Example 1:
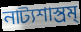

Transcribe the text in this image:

নাট্যশাস্ত্রম্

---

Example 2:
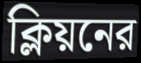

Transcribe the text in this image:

ক্লিয়নের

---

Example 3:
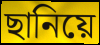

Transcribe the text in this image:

ছানিয়ে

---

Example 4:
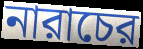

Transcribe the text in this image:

নারাচের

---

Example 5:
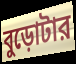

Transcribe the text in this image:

বুড়োটার